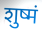
शुष्मं